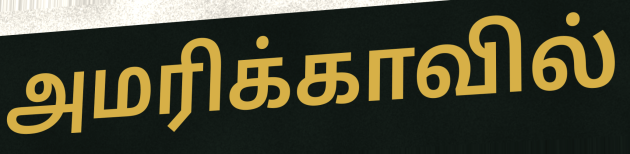
அமரிக்காவில்